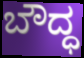
ಬೌದ್ಧ